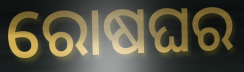
ରୋଷଘର